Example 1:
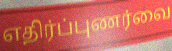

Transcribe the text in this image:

எதிர்ப்புணர்வை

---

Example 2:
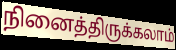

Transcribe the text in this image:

நினைத்திருக்கலாம்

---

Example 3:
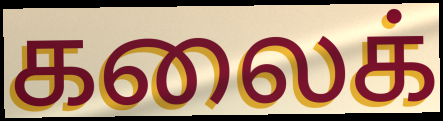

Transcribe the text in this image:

கலைக்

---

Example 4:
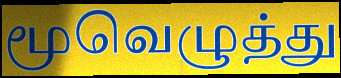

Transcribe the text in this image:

மூவெழுத்து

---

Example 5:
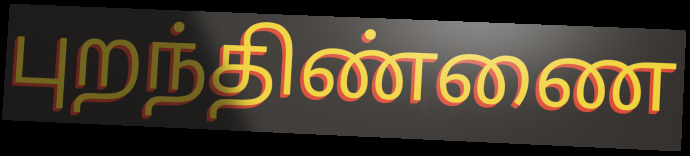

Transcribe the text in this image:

புறந்திண்ணை